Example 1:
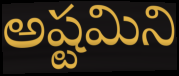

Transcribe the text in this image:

అష్టమిని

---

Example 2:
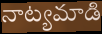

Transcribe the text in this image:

నాట్యమాడి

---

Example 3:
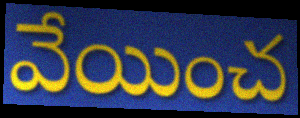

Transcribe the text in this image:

వేయించ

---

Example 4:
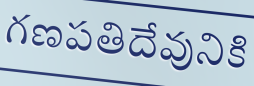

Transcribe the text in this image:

గణపతిదేవునికి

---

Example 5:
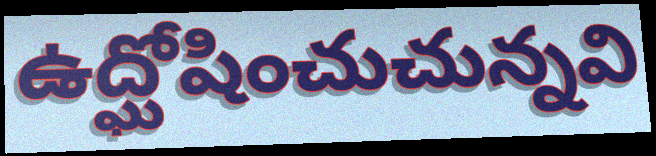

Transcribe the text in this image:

ఉద్ఘోషించుచున్నవి